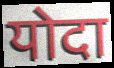
योदा